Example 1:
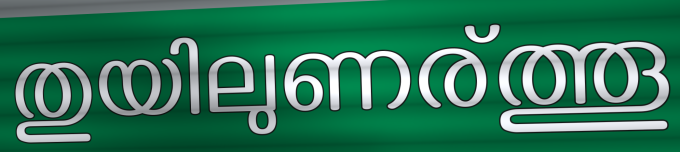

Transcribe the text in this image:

തുയിലുണര്ത്തൂ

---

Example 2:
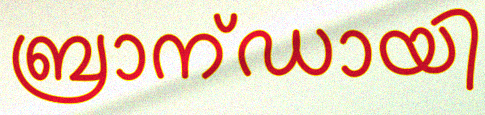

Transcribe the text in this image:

ബ്രാന്ഡായി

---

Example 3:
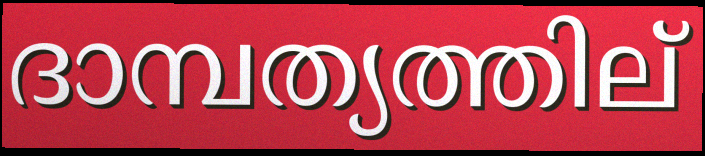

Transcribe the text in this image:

ദാമ്പത്യത്തില്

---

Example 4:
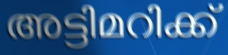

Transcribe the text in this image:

അട്ടിമറിക്ക്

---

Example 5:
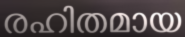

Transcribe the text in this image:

രഹിതമായ